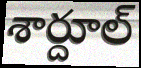
శార్దూల్